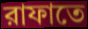
রাফাতে